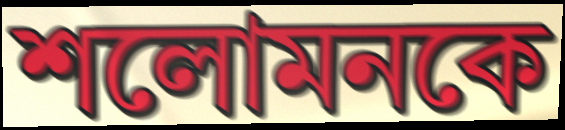
শলোমনকে